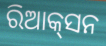
ରିଆକ୍‌ସନ